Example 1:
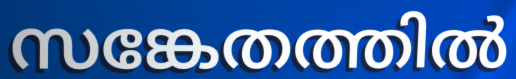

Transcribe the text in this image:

സങ്കേതത്തിൽ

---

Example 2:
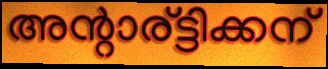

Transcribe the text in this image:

അന്റാര്ട്ടിക്കന്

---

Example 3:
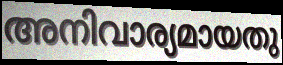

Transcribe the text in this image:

അനിവാര്യമായതു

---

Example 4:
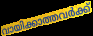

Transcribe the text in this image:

വായിക്കാത്തവർക്ക്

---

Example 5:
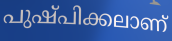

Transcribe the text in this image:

പുഷ്പിക്കലാണ്